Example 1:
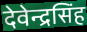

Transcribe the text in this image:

देवेन्द्रसिंह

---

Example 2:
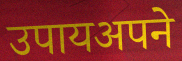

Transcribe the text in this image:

उपायअपने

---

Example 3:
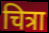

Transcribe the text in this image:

चित्रा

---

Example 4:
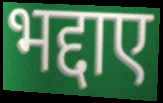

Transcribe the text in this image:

भद्दाए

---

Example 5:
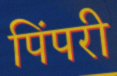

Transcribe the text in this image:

पिंपरी